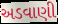
અડવાણી